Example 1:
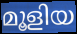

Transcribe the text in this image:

മൂളിയ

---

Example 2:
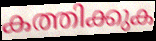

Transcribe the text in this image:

കത്തിക്കുക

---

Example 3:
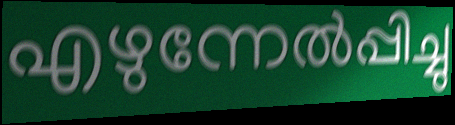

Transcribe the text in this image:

എഴുന്നേൽപ്പിച്ചു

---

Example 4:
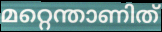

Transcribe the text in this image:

മറ്റെന്താണിത്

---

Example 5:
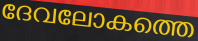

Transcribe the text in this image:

ദേവലോകത്തെ